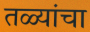
तळ्यांचा